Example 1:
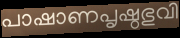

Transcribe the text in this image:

പാഷാണപൃഷ്ഠഭുവി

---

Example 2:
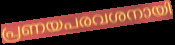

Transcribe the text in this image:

പ്രണയപരവശനായി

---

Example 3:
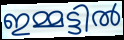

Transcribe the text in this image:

ഇമ്മട്ടിൽ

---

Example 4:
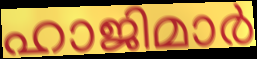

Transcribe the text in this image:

ഹാജിമാർ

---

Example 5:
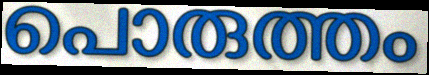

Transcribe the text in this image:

പൊരുത്തം